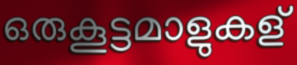
ഒരുകൂട്ടമാളുകള്